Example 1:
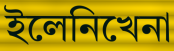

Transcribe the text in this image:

ইলেনিখেনা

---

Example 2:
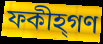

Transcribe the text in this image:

ফকীহ্গণ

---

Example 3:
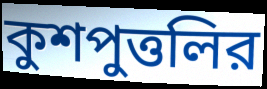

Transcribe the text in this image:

কুশপুত্তলির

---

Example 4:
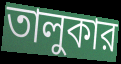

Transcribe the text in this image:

তালুকার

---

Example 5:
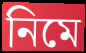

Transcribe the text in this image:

নিমে